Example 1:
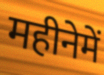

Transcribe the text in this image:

महीनेमें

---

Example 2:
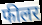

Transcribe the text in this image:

फीलर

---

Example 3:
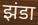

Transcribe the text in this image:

झंडा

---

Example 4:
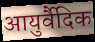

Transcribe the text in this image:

आयुर्वैदिक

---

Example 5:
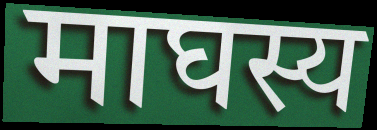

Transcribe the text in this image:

माघस्य